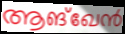
ആങ്ഖേൻ